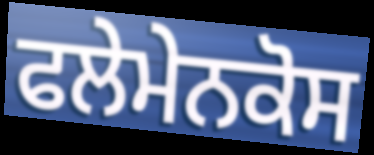
ਫਲੇਮੇਨਕੋਸ